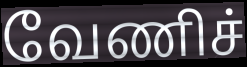
வேணிச்